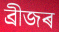
ব্ৰীজৰ